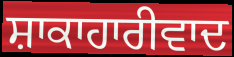
ਸ਼ਾਕਾਹਾਰੀਵਾਦ